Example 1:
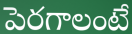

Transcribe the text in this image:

పెరగాలంటే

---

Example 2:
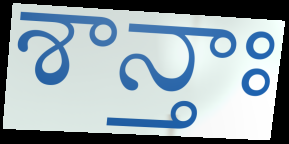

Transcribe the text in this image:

శాన్తాః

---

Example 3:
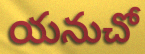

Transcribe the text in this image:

యనుచో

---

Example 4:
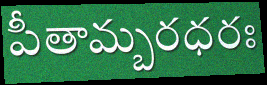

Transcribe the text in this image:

పీతామ్బరధరః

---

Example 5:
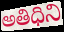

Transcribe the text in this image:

అతిధిని